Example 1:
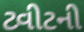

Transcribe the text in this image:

ટ્વીટની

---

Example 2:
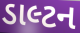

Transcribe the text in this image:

ડાલ્ટન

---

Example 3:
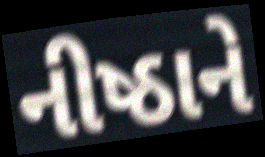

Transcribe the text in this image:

નીષ્ઠાને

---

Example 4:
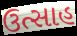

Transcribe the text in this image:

ઉત્સાહ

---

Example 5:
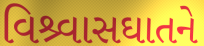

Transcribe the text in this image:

વિશ્ર્વાસઘાતને